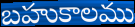
బహుకాలము